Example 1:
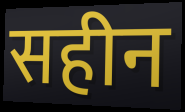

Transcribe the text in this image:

सहीन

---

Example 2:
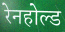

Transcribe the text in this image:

रेनहोल्ड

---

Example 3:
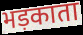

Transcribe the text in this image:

भड़काता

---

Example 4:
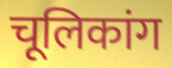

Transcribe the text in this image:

चूलिकांग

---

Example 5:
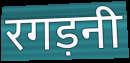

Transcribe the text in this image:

रगड़नी